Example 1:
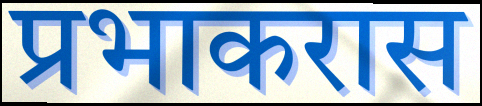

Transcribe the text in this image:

प्रभाकरास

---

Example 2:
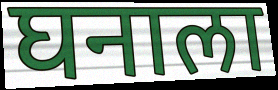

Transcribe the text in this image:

घनाला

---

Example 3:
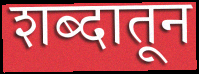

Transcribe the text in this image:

शब्दातून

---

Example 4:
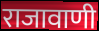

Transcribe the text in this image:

राजावाणी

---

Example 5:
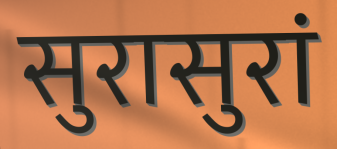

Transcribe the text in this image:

सुरासुरां